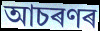
আচৰণৰ